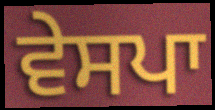
ਵੇਸਪਾ